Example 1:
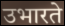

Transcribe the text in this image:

उभारते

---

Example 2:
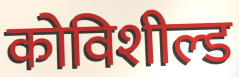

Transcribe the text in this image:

कोविशील्ड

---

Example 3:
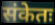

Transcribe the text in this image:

संकेतः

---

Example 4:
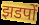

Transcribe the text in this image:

झडपों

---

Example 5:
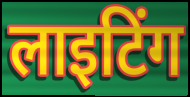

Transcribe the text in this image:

लाइटिंग